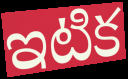
ఇటిక